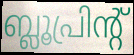
ബ്ലൂപ്രിന്റ്